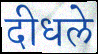
दीधले